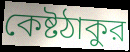
কেষ্টঠাকুর